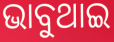
ଭାବୁଥାଇ